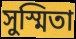
সুস্মিতা